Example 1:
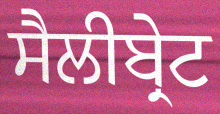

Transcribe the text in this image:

ਸੈਲੀਬ੍ਰੇਟ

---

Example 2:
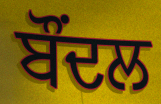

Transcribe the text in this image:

ਬੌਂਦਲ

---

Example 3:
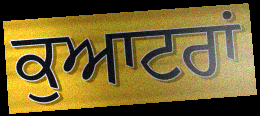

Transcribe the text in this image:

ਕੁਆਟਰਾਂ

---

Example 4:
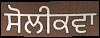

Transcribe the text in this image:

ਸੋਲੀਕਵਾ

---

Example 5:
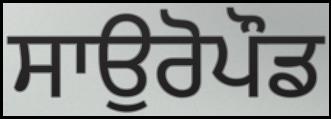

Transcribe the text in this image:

ਸਾਉਰੋਪੌਡ